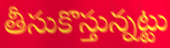
తీసుకొస్తున్నట్టు